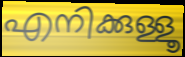
എനിക്കുള്ളൂ